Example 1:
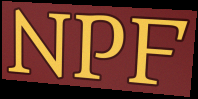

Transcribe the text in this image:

NPF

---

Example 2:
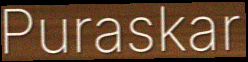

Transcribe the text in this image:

Puraskar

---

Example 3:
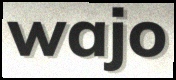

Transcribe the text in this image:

wajo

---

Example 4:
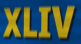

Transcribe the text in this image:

XLIV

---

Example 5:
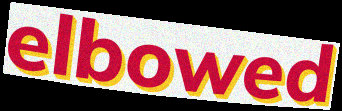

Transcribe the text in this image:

elbowed